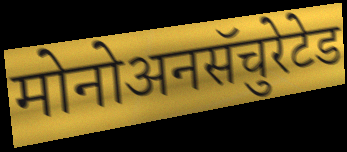
मोनोअनसॅचुरेटेड